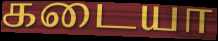
கடையா